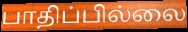
பாதிப்பில்லை